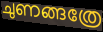
ചുണങ്ങത്രേ